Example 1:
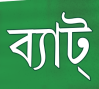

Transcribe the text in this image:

ব্যাট্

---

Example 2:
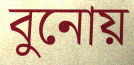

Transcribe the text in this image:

বুনোয়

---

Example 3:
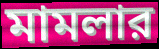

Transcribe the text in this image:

মামলার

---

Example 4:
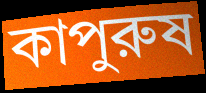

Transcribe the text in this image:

কাপুরুষ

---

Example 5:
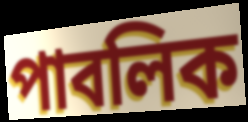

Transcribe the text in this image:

পাবলিক